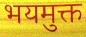
भयमुक्त